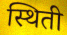
स्थिती